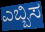
ಎಬ್ಬಿಸ